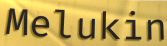
Melukin